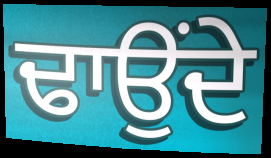
ਢਾਉਂਦੇ